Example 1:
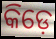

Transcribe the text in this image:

କିଡ଼େ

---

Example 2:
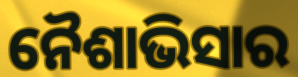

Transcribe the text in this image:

ନୈଶାଭିସାର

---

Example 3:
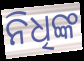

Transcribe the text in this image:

ନିଧିଙ୍କ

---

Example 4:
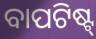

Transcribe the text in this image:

ବାପଟିଷ୍ଟ୍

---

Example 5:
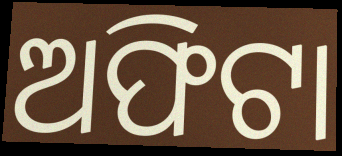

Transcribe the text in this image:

ଅଫିଟା